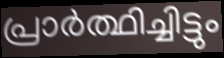
പ്രാർത്ഥിച്ചിട്ടും